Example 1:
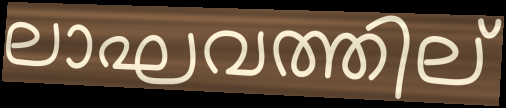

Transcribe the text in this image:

ലാഘവത്തില്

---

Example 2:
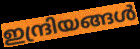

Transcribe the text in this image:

ഇന്ദ്രിയങ്ങൾ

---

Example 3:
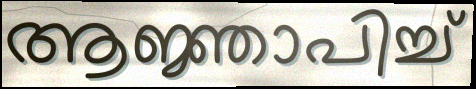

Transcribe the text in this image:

ആജ്ഞാപിച്ച്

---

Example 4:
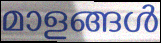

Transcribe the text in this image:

മാളങ്ങൾ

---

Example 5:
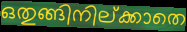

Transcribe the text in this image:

ഒതുങ്ങിനില്ക്കാതെ